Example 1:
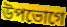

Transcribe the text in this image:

উপভোগে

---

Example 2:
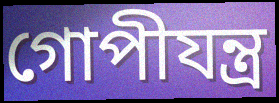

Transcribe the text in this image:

গোপীযন্ত্র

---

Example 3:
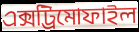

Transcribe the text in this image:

এক্সট্রিমোফাইল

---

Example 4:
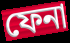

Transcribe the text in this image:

ফেনা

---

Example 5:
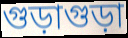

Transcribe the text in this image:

গুড়াগুড়া